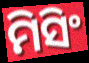
ମିସିଂ